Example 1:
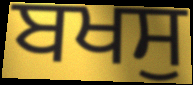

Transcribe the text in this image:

ਬਖਸੁ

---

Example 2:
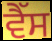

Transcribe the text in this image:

ਵੈੱਸ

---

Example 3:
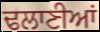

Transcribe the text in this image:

ਢਲਾਣੀਆਂ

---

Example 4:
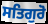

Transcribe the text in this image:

ਸਤਿਗੁਰੋ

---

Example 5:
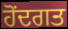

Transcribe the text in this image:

ਹੋਂਦਗਤ